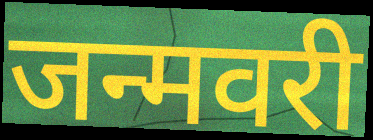
जन्मवरी